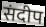
संदीप